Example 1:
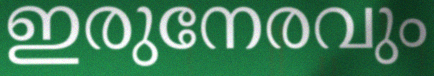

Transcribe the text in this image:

ഇരുനേരവും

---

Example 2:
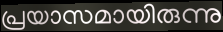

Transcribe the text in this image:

പ്രയാസമായിരുന്നു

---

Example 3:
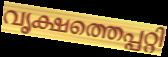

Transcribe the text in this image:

വൃക്ഷത്തെപ്പറ്റി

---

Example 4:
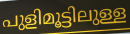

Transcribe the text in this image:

പുളിമൂട്ടിലുള്ള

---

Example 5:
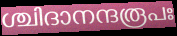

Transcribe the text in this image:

ശ്ചിദാനന്ദരൂപഃ